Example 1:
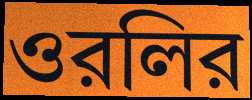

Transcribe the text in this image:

ওরলির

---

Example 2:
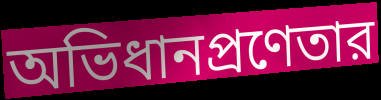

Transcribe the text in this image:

অভিধানপ্রণেতার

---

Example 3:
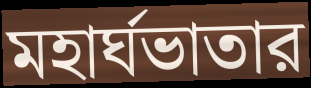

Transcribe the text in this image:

মহার্ঘভাতার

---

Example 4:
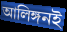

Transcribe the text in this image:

আলিঙ্গনই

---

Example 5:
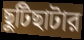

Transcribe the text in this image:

ছুটিছাটার